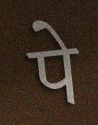
पे